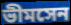
ভীমসেন